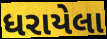
ધરાયેલા